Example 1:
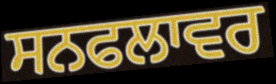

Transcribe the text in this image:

ਸਨਫਲਾਵਰ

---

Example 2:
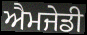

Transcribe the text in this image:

ਐਮਜੇਡੀ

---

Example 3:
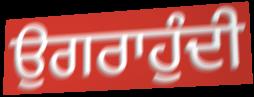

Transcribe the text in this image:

ਉਗਰਾਹੁੰਦੀ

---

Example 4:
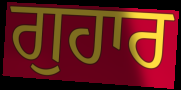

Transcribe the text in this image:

ਗੁਹਾਰ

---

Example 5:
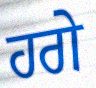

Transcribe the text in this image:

ਹਗੇ